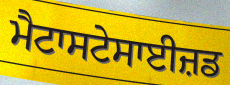
ਮੈਟਾਸਟੇਸਾਈਜ਼ਡ